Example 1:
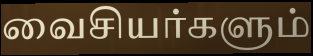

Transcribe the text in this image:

வைசியர்களும்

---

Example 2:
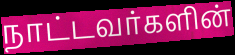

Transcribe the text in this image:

நாட்டவர்களின்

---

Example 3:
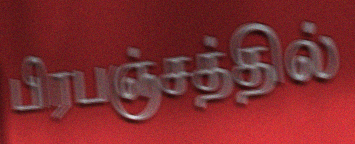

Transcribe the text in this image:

பிரபஞ்சத்தில்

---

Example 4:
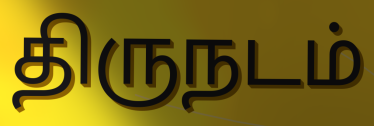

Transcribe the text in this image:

திருநடம்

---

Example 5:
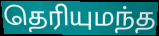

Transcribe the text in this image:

தெரியுமந்த